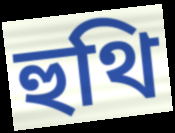
হুথি